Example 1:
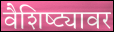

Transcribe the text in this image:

वैशिष्ट्यावर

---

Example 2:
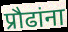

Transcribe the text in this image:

प्रौढांना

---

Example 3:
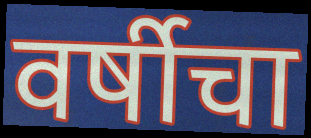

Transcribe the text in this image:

वर्षीचा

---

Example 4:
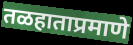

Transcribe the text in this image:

तळहाताप्रमाणे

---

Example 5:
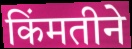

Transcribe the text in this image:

किंमतीने